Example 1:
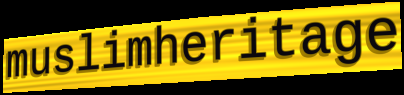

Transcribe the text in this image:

muslimheritage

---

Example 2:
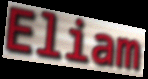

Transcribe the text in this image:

Eliam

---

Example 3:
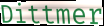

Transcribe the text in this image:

Dittmer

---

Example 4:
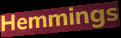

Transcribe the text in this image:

Hemmings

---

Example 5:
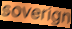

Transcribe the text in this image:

soverign